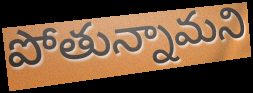
పోతున్నామని